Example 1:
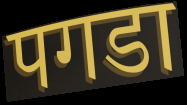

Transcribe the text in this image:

पगडा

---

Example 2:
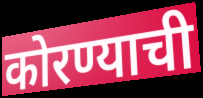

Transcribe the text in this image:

कोरण्याची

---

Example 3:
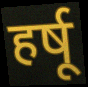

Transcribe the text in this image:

हर्षू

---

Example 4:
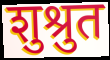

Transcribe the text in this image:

शुश्रुत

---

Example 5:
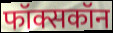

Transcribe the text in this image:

फॉक्सकॉन